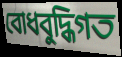
বোধবুদ্ধিগত